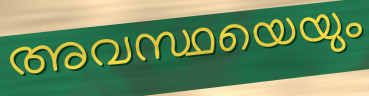
അവസ്ഥയെയും